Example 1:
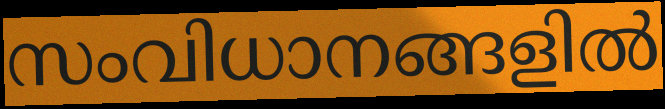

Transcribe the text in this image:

സംവിധാനങ്ങളിൽ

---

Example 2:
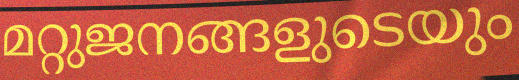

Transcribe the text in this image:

മറ്റുജനങ്ങളുടെയും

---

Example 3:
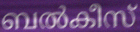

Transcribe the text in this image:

ബൽകീസ്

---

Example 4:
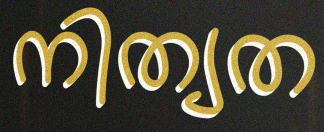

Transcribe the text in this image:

നിത്യത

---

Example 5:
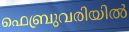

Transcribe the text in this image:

ഫെബ്രുവരിയിൽ